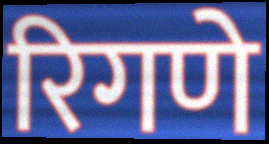
रिगणे